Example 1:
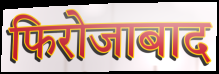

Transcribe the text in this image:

फिरोजाबाद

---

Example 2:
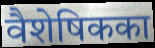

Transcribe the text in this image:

वैशेषिकका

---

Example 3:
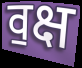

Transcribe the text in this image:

व॒क्ष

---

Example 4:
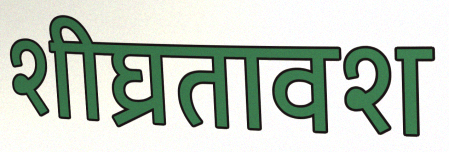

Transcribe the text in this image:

शीघ्रतावश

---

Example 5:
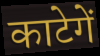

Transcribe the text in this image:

काटेगें